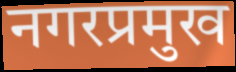
नगरप्रमुख